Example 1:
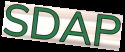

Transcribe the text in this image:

SDAP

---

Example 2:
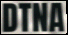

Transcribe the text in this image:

DTNA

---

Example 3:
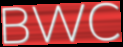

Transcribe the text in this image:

BWC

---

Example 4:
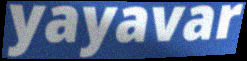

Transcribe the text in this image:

yayavar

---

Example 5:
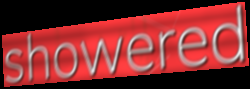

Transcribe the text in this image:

showered